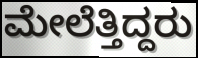
ಮೇಲೆತ್ತಿದ್ದರು